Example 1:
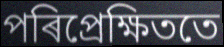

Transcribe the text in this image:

পৰিপ্ৰেক্ষিততে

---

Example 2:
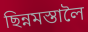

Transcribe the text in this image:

ছিন্নমস্তালৈ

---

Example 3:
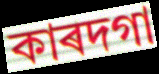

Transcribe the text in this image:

কাৰদগা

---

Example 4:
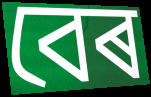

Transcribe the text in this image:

বেৰ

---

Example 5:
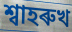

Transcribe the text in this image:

শ্বাহৰুখ